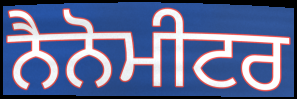
ਨੈਨੋਮੀਟਰ